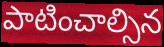
పాటించాల్సిన